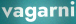
vagarni